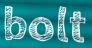
bolt